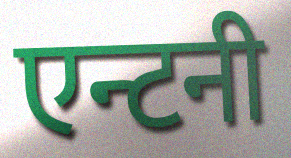
एन्टनी